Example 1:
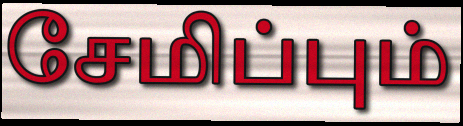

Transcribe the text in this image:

சேமிப்பும்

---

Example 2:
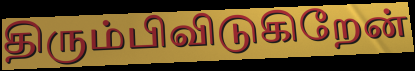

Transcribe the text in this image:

திரும்பிவிடுகிறேன்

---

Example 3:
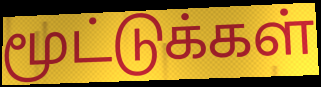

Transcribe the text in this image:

மூட்டுக்கள்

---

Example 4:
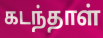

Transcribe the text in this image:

கடந்தாள்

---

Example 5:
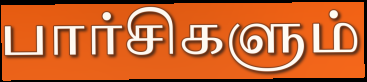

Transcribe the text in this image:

பார்சிகளும்